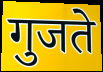
गुजते